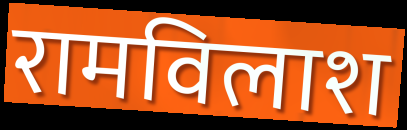
रामविलाश